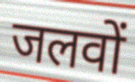
जलवों